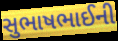
સુભાષભાઈની